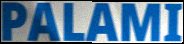
PALAMI